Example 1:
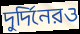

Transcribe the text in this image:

দুর্দিনেরও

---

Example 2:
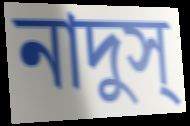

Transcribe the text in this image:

নাদুস্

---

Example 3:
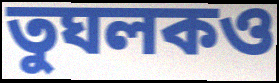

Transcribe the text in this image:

তুঘলকও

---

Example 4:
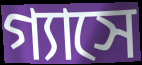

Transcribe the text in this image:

গ্যাসে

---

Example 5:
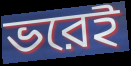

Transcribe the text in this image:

ভরেই